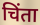
चिंता